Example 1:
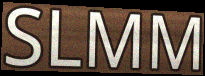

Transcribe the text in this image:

SLMM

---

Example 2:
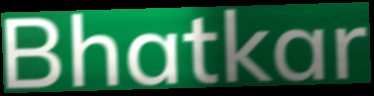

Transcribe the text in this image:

Bhatkar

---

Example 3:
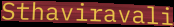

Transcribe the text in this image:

Sthaviravali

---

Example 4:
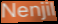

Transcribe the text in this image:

Nenjil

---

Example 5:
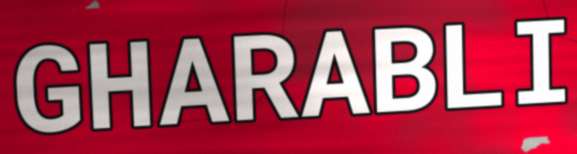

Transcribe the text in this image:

GHARABLI